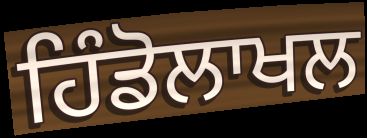
ਹਿੰਡੋਲਾਖਲ